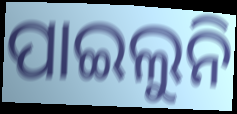
ପାଇଲୁନି